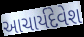
આચાર્યદેવેશ